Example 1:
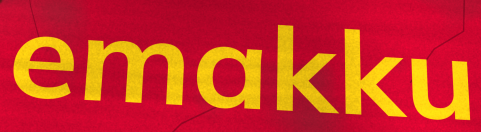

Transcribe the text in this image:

emakku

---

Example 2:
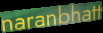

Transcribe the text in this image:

naranbhatt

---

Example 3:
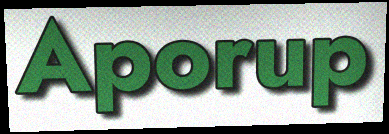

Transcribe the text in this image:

Aporup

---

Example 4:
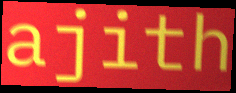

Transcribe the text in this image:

ajith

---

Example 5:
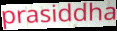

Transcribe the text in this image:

prasiddha